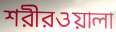
শরীরওয়ালা